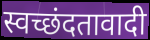
स्वच्छंदतावादी